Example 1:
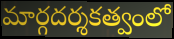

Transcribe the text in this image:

మార్గదర్శకత్వంలో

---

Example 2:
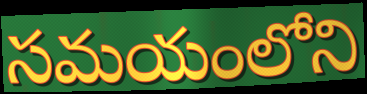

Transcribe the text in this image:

సమయంలోని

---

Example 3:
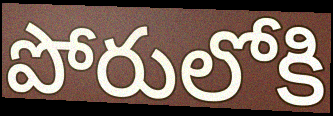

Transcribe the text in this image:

పోరులోకి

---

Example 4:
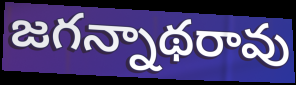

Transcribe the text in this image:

జగన్నాథరావు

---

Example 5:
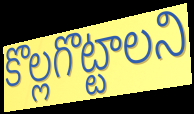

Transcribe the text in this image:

కొల్లగొట్టాలని